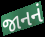
જાનનં